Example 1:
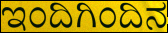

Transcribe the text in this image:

ಇಂದಿಗಿಂದಿನ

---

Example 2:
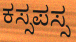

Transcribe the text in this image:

ಕಸ್ಸಪಸ್ಸ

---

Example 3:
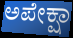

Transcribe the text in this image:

ಅಪೇಕ್ಷಾ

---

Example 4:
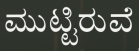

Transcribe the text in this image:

ಮುಟ್ಟಿರುವೆ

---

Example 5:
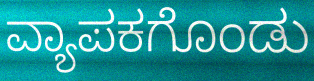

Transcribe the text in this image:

ವ್ಯಾಪಕಗೊಂಡು